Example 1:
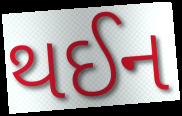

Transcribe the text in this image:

થઈન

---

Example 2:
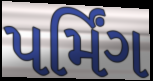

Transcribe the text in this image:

પર્મિંગ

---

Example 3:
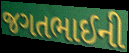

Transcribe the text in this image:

જગતભાઈની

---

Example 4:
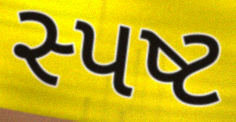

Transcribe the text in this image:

સ્પષ્ટ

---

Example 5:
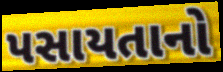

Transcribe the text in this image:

પસાયતાનો